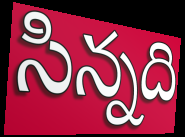
సిన్నది